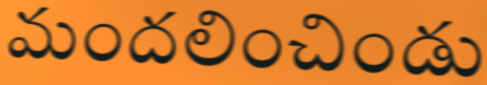
మందలించిండు